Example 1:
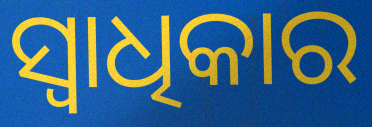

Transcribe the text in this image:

ସ୍ବାଧିକାର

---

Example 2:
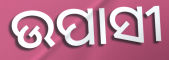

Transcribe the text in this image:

ଉପାସୀ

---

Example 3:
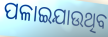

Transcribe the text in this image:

ପଳାଇଯାଉଥିବ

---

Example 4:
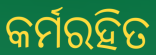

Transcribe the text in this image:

କର୍ମରହିତ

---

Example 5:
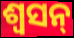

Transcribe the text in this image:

ଶ୍ୱସନ୍